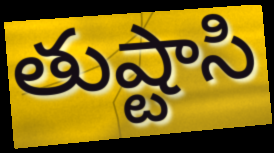
తుష్టాసి